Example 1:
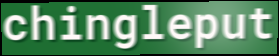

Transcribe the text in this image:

chingleput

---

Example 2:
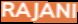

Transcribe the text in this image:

RAJANI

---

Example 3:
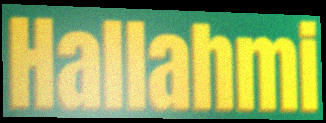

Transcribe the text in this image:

Hallahmi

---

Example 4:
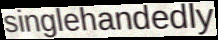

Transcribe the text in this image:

singlehandedly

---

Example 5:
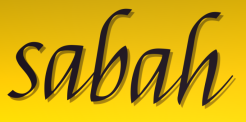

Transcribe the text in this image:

sabah